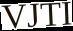
VJTI